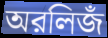
অরলিজঁ